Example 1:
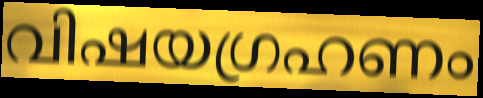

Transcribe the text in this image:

വിഷയഗ്രഹണം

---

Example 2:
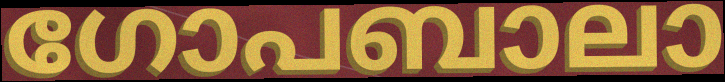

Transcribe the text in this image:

ഗോപബാലാ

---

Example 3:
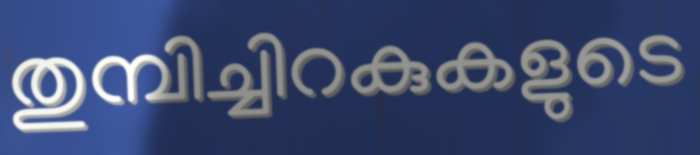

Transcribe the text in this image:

തുമ്പിച്ചിറകുകളുടെ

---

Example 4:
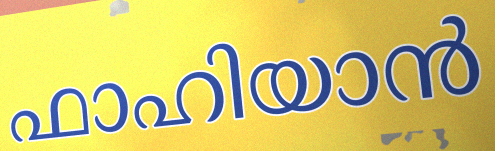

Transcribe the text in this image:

ഫാഹിയാൻ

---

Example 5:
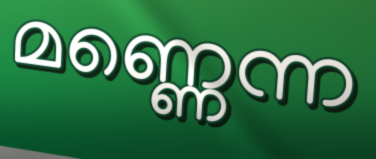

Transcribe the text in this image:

മണ്ണെന്ന